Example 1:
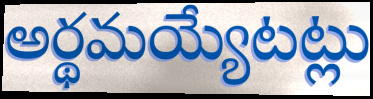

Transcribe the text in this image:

అర్థమయ్యేటట్లు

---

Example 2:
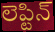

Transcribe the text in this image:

లెప్టిన్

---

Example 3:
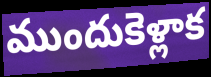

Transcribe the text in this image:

ముందుకెళ్లాక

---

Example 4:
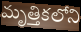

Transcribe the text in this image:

మృత్తికలోని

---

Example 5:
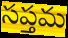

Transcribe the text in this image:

సప్తమ